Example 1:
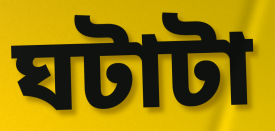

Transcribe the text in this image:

ঘটাটা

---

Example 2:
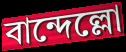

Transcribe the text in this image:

বান্দেল্লো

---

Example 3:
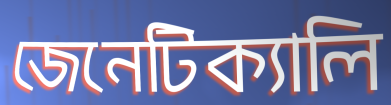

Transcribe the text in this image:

জেনেটিক্যালি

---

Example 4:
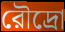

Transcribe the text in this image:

রৌদ্রো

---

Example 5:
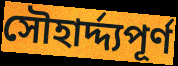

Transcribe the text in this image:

সৌহার্দ্দ্যপূর্ণ